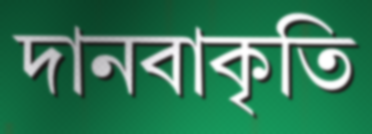
দানবাকৃতি